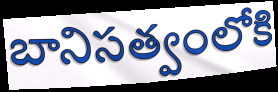
బానిసత్వంలోకి